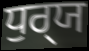
ਧੁਰ੍‍ਯ